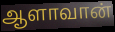
ஆளாவான்